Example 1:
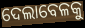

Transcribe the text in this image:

ଦେଲାବେଳକୁ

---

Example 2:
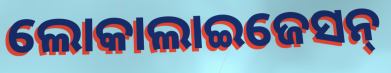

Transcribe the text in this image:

ଲୋକାଲାଇଜେସନ୍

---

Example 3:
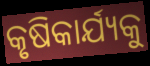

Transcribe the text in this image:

କୃଷିକାର୍ଯ୍ୟକୁ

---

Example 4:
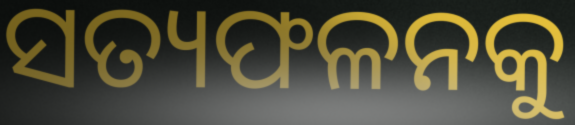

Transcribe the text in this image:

ସତ୍ୟଫଳନକୁ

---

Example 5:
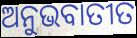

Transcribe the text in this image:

ଅନୁଭବାତୀତ